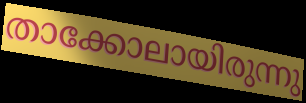
താക്കോലായിരുന്നു